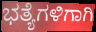
ಭತ್ಯೆಗಳಿಗಾಗಿ